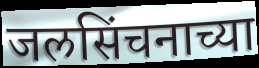
जलसिंचनाच्या